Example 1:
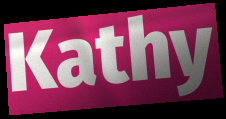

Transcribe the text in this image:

Kathy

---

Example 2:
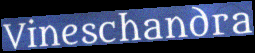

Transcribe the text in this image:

Vineschandra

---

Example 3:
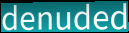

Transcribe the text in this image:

denuded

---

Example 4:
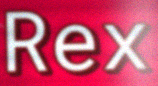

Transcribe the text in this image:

Rex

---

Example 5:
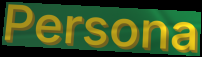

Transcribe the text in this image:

Persona